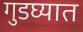
गुडघ्यात